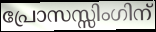
പ്രോസസ്സിംഗിന്